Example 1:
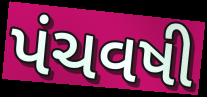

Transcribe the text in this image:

પંચવષી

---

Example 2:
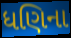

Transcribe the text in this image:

ધણિના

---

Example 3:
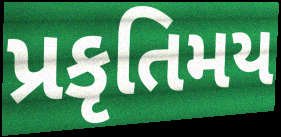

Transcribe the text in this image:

પ્રકૃતિમય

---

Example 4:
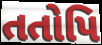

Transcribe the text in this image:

તતોપિ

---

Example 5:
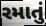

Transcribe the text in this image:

રમાતું